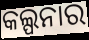
କଲ୍ପନାର